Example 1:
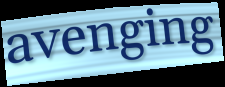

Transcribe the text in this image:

avenging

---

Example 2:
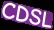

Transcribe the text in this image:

CDSL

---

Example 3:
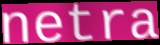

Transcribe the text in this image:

netra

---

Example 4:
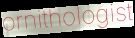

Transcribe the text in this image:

ornithologist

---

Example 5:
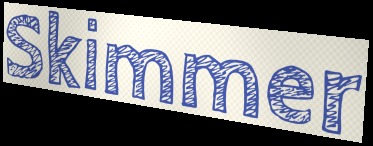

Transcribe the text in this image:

Skimmer